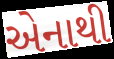
એનાથી